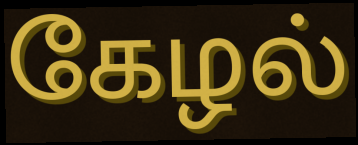
கேழல்